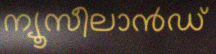
ന്യൂസീലാൻഡ്